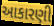
આકારણી